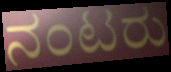
ನಂಟರು